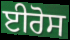
ਈਰੋਸ